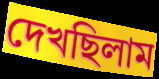
দেখছিলাম